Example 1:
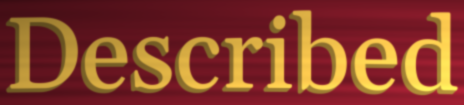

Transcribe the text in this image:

Described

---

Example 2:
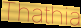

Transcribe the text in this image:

Thathia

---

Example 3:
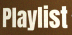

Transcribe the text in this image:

Playlist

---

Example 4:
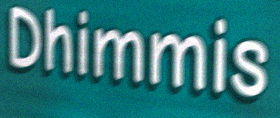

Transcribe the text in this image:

Dhimmis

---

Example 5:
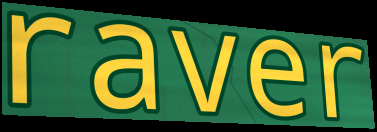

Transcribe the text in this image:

raver